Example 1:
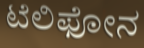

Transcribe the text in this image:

ಟೆಲಿಫೋನ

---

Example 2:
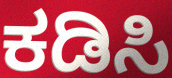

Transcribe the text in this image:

ಕಡಿಸಿ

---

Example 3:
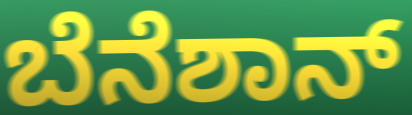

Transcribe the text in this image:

ಬೆನೆಶಾನ್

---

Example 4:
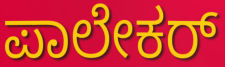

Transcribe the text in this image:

ಪಾಲೇಕರ್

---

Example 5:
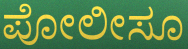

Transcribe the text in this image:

ಪೋಲೀಸೂ